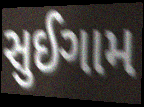
સુઈગામ